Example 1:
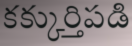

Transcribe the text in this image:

కక్కుర్తిపడి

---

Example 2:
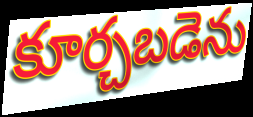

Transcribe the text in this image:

కూర్చబడెను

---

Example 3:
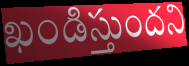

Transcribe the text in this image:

ఖండిస్తుందని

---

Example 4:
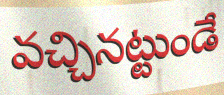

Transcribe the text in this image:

వచ్చినట్టుండే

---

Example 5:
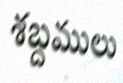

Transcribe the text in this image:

శబ్దములు